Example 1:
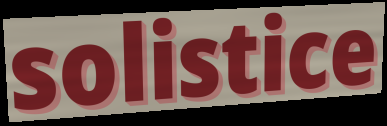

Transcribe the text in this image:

solistice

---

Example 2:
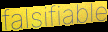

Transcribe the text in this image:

falsifiable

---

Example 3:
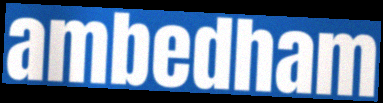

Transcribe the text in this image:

ambedham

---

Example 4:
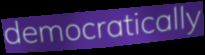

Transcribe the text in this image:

democratically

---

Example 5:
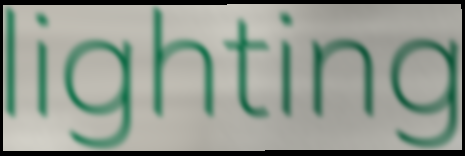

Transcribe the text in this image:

lighting